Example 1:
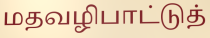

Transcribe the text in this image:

மதவழிபாட்டுத்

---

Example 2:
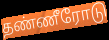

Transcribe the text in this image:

தண்ணீரோடு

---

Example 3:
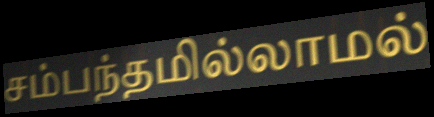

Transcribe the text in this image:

சம்பந்தமில்லாமல்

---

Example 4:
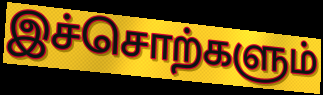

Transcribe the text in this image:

இச்சொற்களும்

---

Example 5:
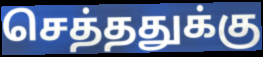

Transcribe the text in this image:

செத்ததுக்கு